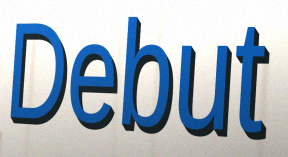
Debut